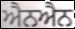
ਐਨਐਨ